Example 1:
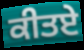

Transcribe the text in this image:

ਕੀਤਏ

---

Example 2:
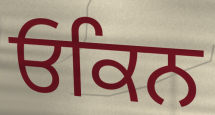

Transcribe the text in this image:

ਓਕਿਨ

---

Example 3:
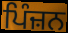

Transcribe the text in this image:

ਪਿੰਜ਼ਨ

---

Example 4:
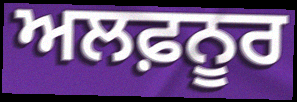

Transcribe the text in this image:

ਅਲਫ਼ਨੂਰ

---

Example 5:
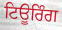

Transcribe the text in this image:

ਟਿਊਰਿੰਗ